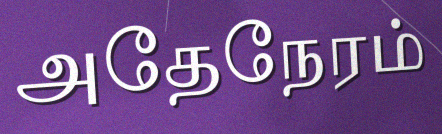
அதேநேரம்